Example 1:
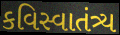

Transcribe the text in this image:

કવિસ્વાતંત્ર્ય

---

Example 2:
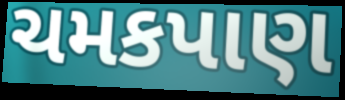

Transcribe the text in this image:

ચમકપાણ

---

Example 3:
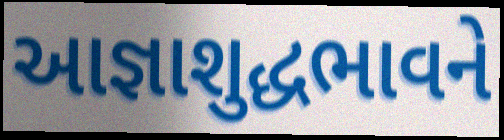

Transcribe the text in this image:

આજ્ઞાશુદ્ધભાવને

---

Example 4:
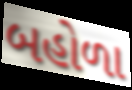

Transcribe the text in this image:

બહોળા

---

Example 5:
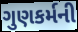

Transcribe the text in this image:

ગુણકર્મની